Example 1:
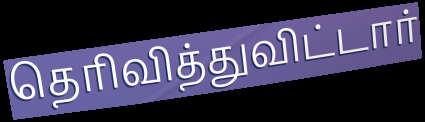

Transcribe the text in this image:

தெரிவித்துவிட்டார்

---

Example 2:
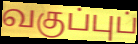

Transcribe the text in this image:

வகுப்புப்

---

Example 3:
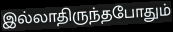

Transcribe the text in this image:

இல்லாதிருந்தபோதும்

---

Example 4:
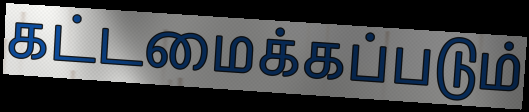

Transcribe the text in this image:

கட்டமைக்கப்படும்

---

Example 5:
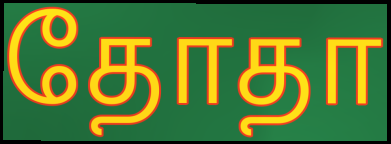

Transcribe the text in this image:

தோதா